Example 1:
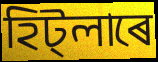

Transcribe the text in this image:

হিট্‌লাৰে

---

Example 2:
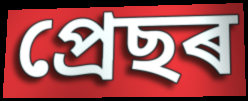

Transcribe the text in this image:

প্ৰেছৰ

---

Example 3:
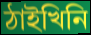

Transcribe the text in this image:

ঠাইখিনি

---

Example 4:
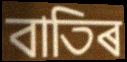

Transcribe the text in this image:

বাতিৰ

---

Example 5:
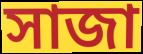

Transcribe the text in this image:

সাজা